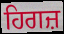
ਹਿਗਜ਼